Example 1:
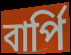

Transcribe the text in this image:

বার্পি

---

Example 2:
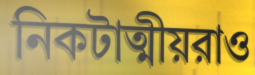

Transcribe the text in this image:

নিকটাত্মীয়রাও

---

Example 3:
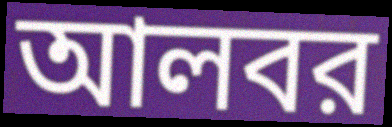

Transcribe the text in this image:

আলবর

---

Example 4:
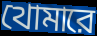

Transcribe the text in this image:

থোমারে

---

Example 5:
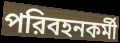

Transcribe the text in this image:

পরিবহনকর্মী